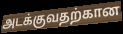
அடக்குவதற்கான